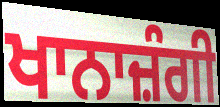
ਖਾਨਾਜ਼ੰਗੀ